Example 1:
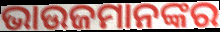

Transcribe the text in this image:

ଭାଉଜମାନଙ୍କର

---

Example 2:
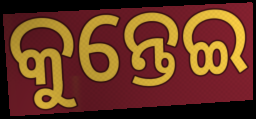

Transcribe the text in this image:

କୁନ୍ତେଇ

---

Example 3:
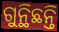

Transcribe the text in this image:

ଗୁନ୍ଥିଛନ୍ତି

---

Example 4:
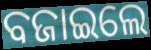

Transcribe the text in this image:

ବଜାଇଲେ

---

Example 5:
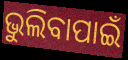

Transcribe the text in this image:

ଭୁଲିବାପାଇଁ